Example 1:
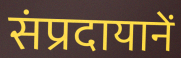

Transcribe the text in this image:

संप्रदायानें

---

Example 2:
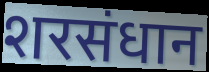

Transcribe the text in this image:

शरसंधान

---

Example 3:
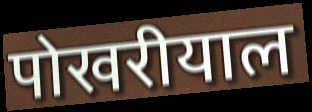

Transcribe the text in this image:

पोखरीयाल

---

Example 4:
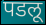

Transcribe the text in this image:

पडलू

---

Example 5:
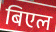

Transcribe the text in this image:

बिएल